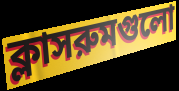
ক্লাসরুমগুলো